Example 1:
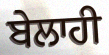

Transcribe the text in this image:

ਬੇਲਾਹੀ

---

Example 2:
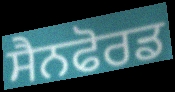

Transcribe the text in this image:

ਸੈਨਫੋਰਡ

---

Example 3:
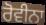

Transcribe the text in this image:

ਰੋਵੀਨਾ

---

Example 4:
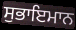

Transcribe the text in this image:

ਸੁਭਾਇਮਾਨ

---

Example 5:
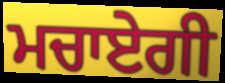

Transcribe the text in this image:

ਮਚਾਏਗੀ